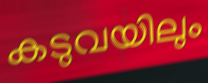
കടുവയിലും